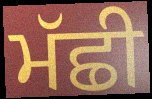
ਮੱਛੀ